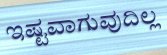
ಇಷ್ಟವಾಗುವುದಿಲ್ಲ